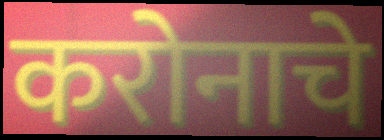
करोनाचे